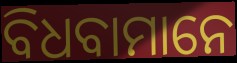
ବିଧବାମାନେ